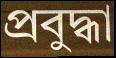
প্রবুদ্ধা